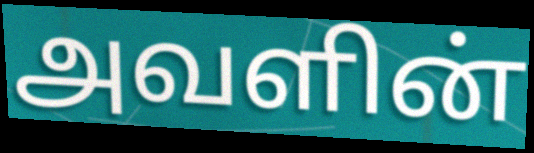
அவளின்